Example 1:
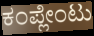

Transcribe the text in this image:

ಕಂಪ್ಲೇಂಟು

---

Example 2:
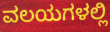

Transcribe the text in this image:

ವಲಯಗಳಲ್ಲಿ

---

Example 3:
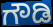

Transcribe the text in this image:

ಗೌಡಿ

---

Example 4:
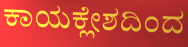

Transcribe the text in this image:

ಕಾಯಕ್ಲೇಶದಿಂದ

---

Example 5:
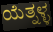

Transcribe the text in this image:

ಯೆತ್ನಳ್ಳ